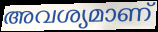
അവശ്യമാണ്